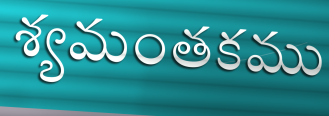
శ్యమంతకము